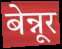
बेन्नूर